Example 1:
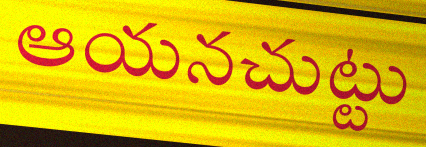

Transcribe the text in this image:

ఆయనచుట్టు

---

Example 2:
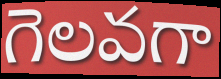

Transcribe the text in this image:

గెలవగా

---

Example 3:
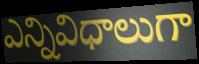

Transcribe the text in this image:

ఎన్నివిధాలుగా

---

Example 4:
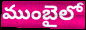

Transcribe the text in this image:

ముంబైలో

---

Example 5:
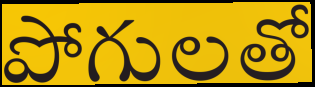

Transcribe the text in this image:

పోగులతో